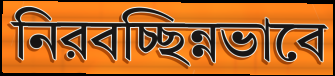
নিরবচ্ছিন্নভাবে